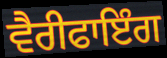
ਵੈਰੀਫਾਇੰਗ